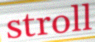
stroll